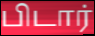
பிடார்